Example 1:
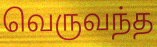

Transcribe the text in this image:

வெருவந்த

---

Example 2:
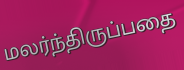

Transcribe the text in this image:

மலர்ந்திருப்பதை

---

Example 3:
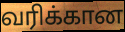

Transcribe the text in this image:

வரிக்கான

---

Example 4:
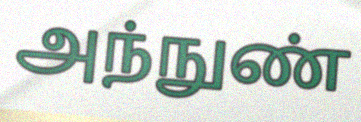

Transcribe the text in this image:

அந்நுண்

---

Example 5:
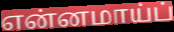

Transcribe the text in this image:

என்னமாய்ப்